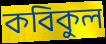
কবিকুল